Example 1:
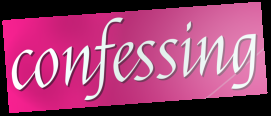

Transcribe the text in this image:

confessing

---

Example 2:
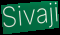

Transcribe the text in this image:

Sivaji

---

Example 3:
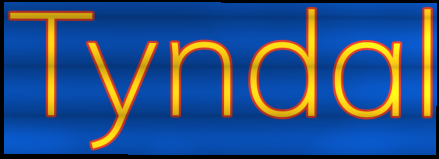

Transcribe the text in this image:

Tyndal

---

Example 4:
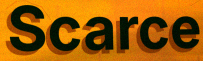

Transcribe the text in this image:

Scarce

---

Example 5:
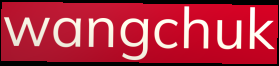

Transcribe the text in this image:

wangchuk